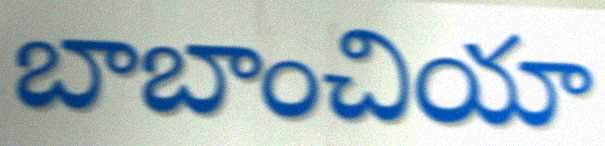
బాబాంచియా